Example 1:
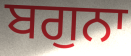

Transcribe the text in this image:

ਬਗੁਨਾ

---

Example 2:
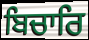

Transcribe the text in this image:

ਬਿਚਾਰਿ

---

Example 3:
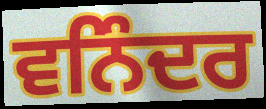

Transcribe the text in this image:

ਵਨਿੰਦਰ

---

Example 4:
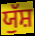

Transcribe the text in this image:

ਯੁੱਸ਼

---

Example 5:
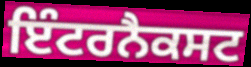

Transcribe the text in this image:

ਇੰਟਰਨੈਕਸਟ